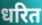
धरित